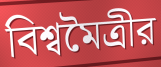
বিশ্বমৈত্রীর